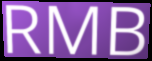
RMB